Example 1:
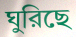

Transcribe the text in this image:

ঘুরিছে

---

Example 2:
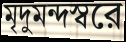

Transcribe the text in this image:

মৃদুমন্দস্বরে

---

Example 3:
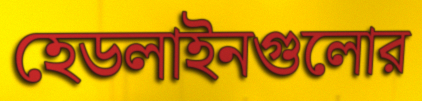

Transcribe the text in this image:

হেডলাইনগুলোর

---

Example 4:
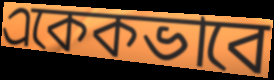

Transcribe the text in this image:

একেকভাবে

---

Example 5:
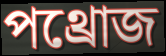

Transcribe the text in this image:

পথ্রোজ